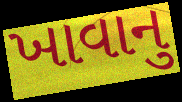
ખાવાનુ